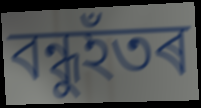
বন্ধুহঁতৰ